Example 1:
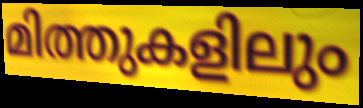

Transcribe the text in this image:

മിത്തുകളിലും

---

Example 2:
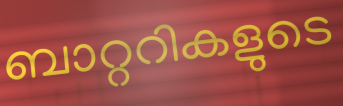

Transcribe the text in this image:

ബാറ്ററികളുടെ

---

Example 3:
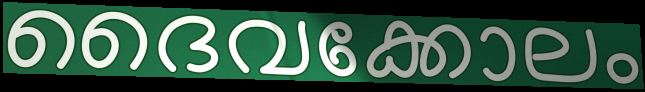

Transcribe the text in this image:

ദൈവക്കോലം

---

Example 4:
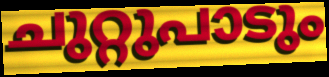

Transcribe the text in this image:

ചുറ്റുപാടും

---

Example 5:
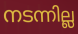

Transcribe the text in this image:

നടന്നില്ല